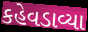
કહેવડાવ્યા